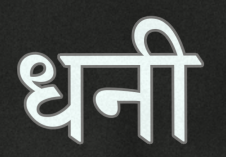
धनी